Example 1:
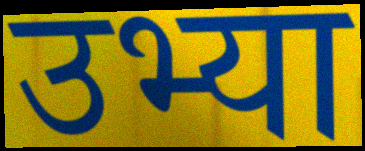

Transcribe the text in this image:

उभ्या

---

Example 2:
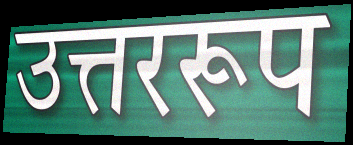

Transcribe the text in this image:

उत्तररूप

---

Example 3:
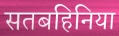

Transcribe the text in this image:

सतबहिनिया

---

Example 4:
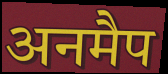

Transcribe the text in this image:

अनमैप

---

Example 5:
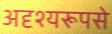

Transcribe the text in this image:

अदृश्यरूपसे